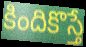
కిందికొస్తే